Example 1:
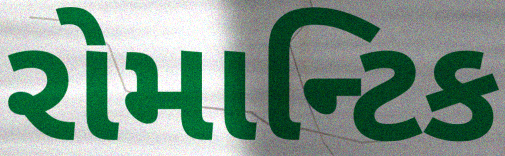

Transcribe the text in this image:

રોમાન્ટિક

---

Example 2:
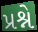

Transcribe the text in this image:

પ્રશ્ને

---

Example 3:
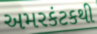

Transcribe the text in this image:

અમરકંટકથી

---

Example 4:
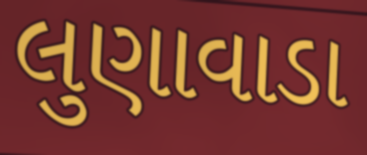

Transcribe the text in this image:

લુણાવાડા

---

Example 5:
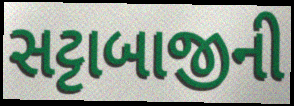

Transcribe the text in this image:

સટ્ટાબાજીની